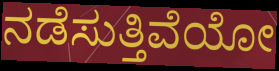
ನಡೆಸುತ್ತಿವೆಯೋ